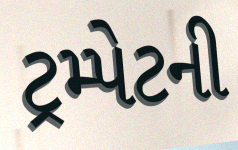
ટ્રમ્પેટની